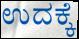
ಉದಕ್ಕೆ